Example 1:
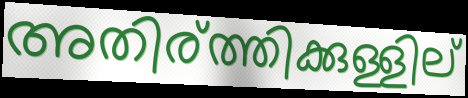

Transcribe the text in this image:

അതിര്ത്തിക്കുള്ളില്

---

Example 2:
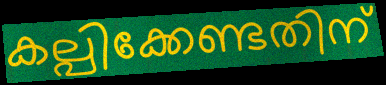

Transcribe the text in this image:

കല്പിക്കേണ്ടതിന്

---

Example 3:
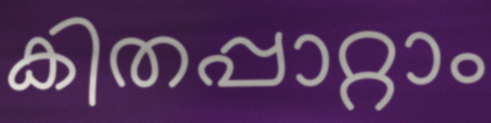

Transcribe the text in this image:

കിതപ്പാറ്റാം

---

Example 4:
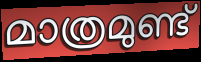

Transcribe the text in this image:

മാത്രമുണ്ട്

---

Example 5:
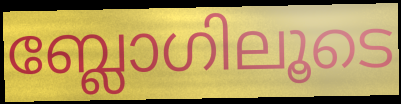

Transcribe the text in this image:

ബ്ലോഗിലൂടെ